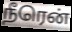
நீரென்